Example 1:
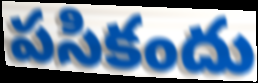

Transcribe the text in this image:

పసికందు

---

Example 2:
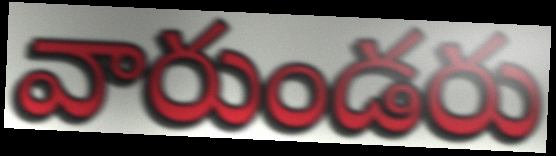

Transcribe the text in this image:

వారుండరు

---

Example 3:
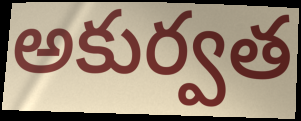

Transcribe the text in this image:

అకుర్వత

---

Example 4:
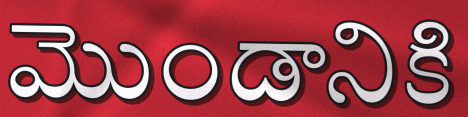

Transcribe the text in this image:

మొండానికి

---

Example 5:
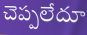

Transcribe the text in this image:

చెప్పలేదూ